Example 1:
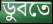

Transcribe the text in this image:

ডুবতে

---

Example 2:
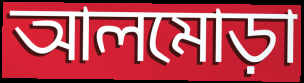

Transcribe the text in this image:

আলমোড়া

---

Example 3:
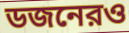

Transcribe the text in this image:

ডজনেরও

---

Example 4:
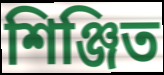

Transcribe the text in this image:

শিঞ্জিত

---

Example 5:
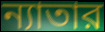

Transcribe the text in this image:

ন্যাতার